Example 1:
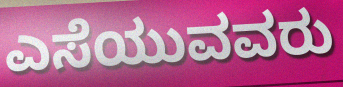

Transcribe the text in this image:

ಎಸೆಯುವವರು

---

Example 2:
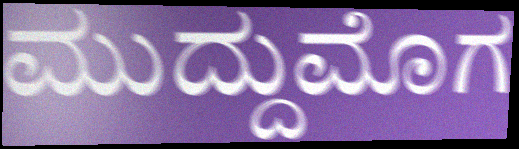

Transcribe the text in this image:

ಮುದ್ದುಮೊಗ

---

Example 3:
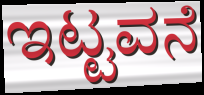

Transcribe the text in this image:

ಇಟ್ಟವನೆ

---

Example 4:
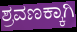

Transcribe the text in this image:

ಶ್ರವಣಕ್ಕಾಗಿ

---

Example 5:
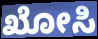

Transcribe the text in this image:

ಖೋಸಿ